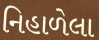
નિહાળેલા